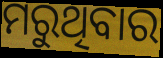
ମରୁଥିବାର